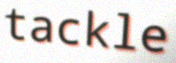
tackle